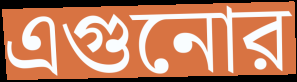
এগুনোর